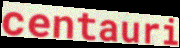
centauri